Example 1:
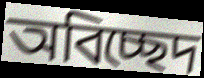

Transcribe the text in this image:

অবিচ্ছেদ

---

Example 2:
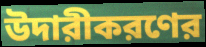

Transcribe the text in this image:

উদারীকরণের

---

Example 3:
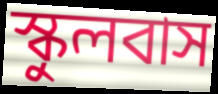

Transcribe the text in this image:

স্কুলবাস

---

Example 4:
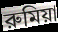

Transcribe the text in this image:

রুমিয়া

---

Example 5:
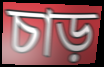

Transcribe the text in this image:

চাড়